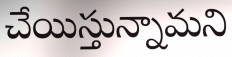
చేయిస్తున్నామని